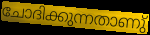
ചോദിക്കുന്നതാണു്